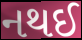
નથઈ